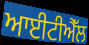
ਆਈਟੀਐੱਲ